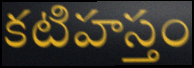
కటిహస్తం